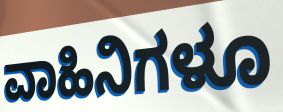
ವಾಹಿನಿಗಳೂ